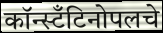
कॉन्स्टँटिनोपलचे